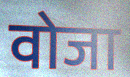
वोजा